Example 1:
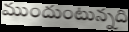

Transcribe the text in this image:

ముందుంటున్నది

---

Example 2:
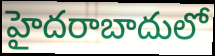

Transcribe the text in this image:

హైదరాబాదులో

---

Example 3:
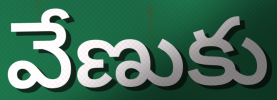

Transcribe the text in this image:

వేణుకు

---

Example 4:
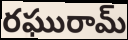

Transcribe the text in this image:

రఘురామ్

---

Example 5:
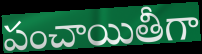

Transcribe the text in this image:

పంచాయితీగా